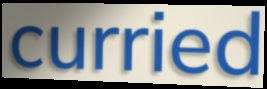
curried